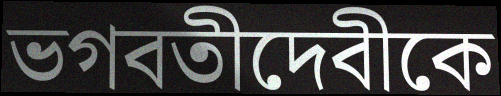
ভগবতীদেবীকে